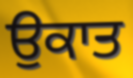
ਉਕਾਤ